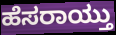
ಹೆಸರಾಯ್ತು